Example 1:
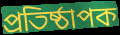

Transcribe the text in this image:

প্ৰতিষ্ঠাপক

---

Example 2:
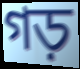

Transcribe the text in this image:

গড়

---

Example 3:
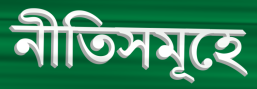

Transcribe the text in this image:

নীতিসমূহে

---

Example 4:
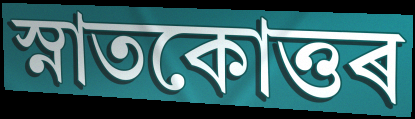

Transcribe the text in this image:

স্নাতকোত্তৰ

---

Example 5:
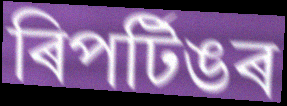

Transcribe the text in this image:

ৰিপৰ্টিঙৰ